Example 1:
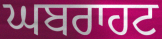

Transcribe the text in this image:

ਘਬਰਾਹਟ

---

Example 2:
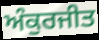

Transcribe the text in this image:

ਅੰਕੁਰਜੀਤ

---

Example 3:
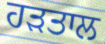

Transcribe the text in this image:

ਹੜਤਾਲ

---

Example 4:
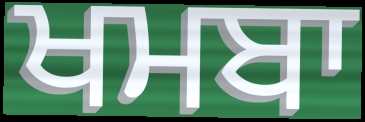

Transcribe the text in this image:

ਖਮਬਾ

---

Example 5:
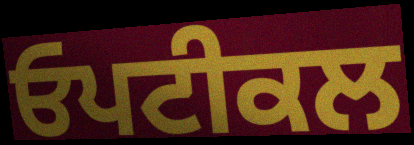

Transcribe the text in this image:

ਓਪਟੀਕਲ